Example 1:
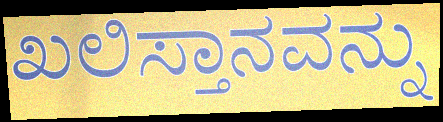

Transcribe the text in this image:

ಖಲಿಸ್ತಾನವನ್ನು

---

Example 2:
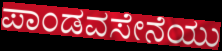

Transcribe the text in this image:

ಪಾಂಡವಸೇನೆಯು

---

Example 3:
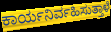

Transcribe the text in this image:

ಕಾರ್ಯನಿರ್ವಹಿಸುತ್ತಾಳೆ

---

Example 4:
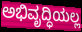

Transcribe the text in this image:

ಅಭಿವೃದ್ಧಿಯಲ್ಲ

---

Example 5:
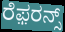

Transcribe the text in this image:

ರೆಫ಼ರನ್ಸ್